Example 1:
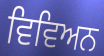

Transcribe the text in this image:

ਵਿਵਿਅਨ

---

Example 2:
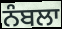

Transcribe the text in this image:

ਨੰਬਲਾ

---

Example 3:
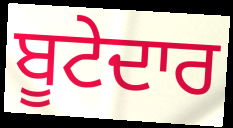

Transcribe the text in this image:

ਬੂਟੇਦਾਰ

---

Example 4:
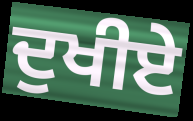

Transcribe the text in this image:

ਦੁਖੀਏ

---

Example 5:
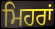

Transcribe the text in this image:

ਮਿਹਰਾਂ